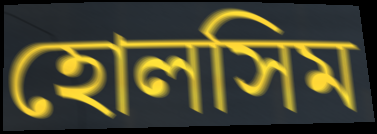
হোলসিম